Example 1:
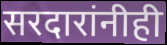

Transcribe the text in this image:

सरदारांनीही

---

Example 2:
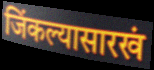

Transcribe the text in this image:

जिंकल्यासारखं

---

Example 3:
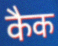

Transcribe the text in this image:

कैक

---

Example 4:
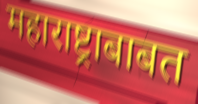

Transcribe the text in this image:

महाराष्ट्राबाबत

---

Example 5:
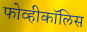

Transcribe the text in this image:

फोव्हीकॉलिस